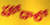
హోదాలో